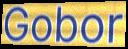
Gobor